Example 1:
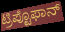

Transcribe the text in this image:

ಟ್ರಿಪ್ಟೊಫಾನ್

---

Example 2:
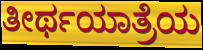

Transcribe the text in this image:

ತೀರ್ಥಯಾತ್ರೆಯ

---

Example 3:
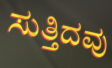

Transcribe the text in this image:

ಸುತ್ತಿದವು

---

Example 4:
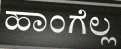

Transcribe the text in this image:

ಹಾಂಗೆಲ್ಲ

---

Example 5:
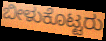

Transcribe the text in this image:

ಬೀಳುಕೊಟ್ಟರು